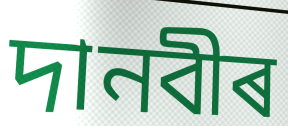
দানবীৰ